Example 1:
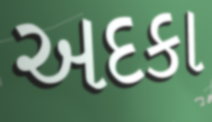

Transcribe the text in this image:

અદકા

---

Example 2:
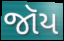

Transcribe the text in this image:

જૉય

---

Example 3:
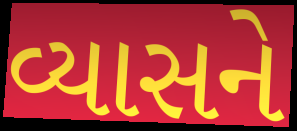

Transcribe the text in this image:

વ્યાસને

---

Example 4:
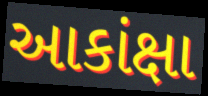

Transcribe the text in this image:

આકાંક્ષા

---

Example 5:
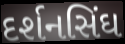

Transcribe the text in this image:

દર્શનસિંઘ